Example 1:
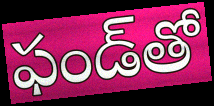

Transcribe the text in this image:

ఫండ్‌తో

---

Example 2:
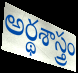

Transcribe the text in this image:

అర్థశాస్త్రం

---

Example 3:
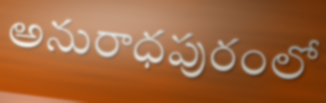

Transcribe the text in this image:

అనురాధపురంలో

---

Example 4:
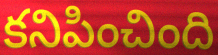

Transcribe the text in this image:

కనిపించింది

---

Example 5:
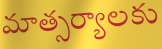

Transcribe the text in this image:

మాత్సర్యాలకు